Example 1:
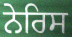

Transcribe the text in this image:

ਨੇਰਿਸ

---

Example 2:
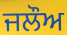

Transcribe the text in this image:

ਜਲੌਅ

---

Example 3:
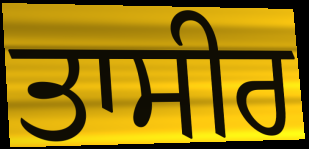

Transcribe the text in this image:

ਤਾਸੀਰ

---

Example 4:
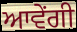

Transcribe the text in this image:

ਆਵੇਂਗੀ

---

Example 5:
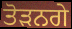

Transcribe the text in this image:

ਤੋੜਨਗੇ